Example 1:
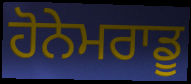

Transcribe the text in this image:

ਹੋਨੇਮਰਾਡੂ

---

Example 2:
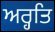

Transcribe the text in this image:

ਅਰ੍ਹਤਿ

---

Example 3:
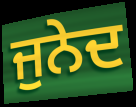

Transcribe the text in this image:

ਜੁਨੇਦ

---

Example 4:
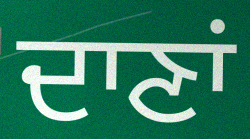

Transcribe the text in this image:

ਦਾਣਾਂ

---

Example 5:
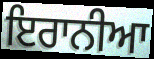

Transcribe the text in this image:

ਇਰਾਨੀਆ